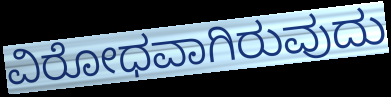
ವಿರೋಧವಾಗಿರುವುದು